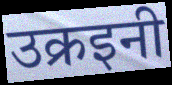
उक्रइनी